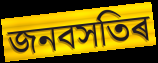
জনবসতিৰ